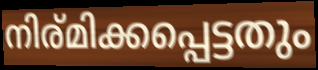
നിര്മിക്കപ്പെട്ടതും